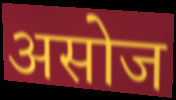
असोज